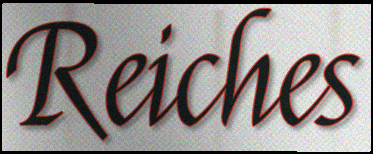
Reiches